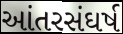
આંતરસંઘર્ષ